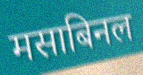
मसाबिनल